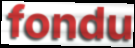
fondu